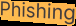
Phishing